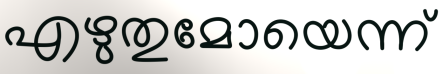
എഴുതുമോയെന്ന്